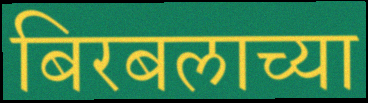
बिरबलाच्या